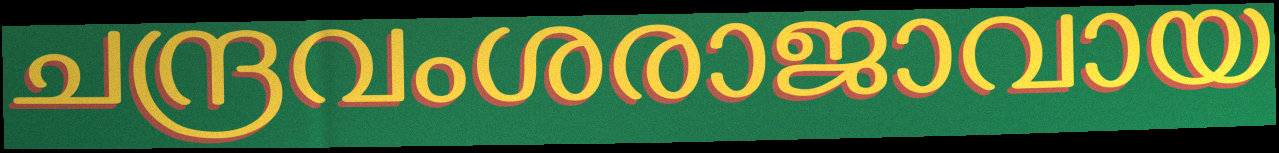
ചന്ദ്രവംശരാജാവായ